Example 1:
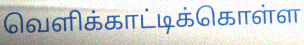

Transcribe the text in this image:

வெளிக்காட்டிக்கொள்ள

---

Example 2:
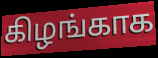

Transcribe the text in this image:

கிழங்காக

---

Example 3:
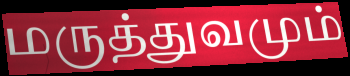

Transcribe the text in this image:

மருத்துவமும்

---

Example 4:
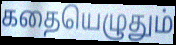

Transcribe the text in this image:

கதையெழுதும்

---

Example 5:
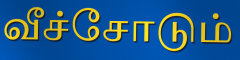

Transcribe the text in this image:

வீச்சோடும்